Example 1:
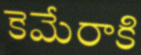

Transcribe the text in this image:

కెమేరాకి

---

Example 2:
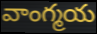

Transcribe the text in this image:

వాంగ్మయ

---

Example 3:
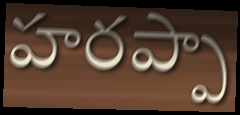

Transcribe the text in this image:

హరప్పా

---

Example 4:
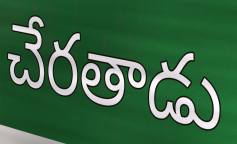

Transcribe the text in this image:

చేరతాడు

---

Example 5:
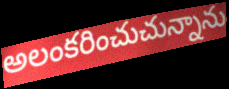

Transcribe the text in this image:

అలంకరించుచున్నాను